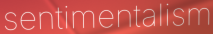
sentimentalism